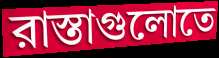
রাস্তাগুলোতে